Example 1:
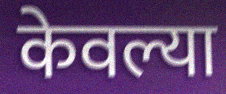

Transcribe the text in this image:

केवल्या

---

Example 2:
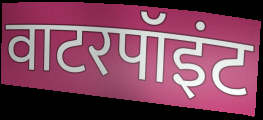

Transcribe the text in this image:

वाटरपॉइंट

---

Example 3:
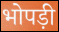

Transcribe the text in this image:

भोपड़ी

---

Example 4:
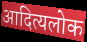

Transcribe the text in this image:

आदित्यलोक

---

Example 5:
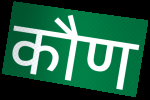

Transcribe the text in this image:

कौण